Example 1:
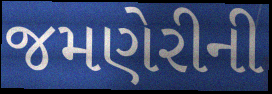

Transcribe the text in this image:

જમણેરીની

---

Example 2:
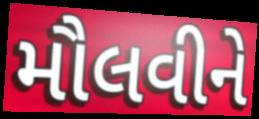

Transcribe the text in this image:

મૌલવીને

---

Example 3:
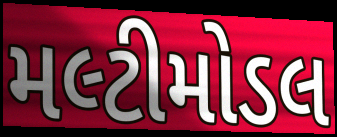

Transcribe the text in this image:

મલ્ટીમોડલ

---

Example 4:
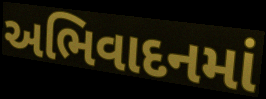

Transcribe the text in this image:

અભિવાદનમાં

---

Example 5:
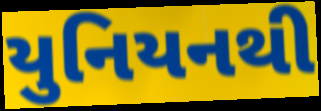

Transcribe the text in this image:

યુનિયનથી